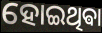
ହୋଇଥିଵା